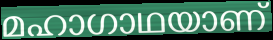
മഹാഗാഥയാണ്